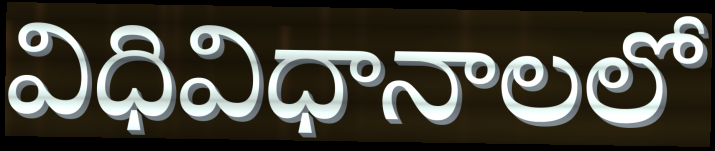
విధివిధానాలలో